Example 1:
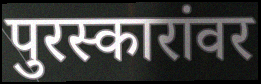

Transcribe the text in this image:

पुरस्कारांवर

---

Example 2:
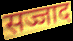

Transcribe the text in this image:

सज्जाद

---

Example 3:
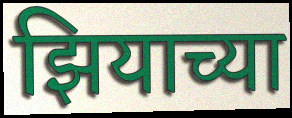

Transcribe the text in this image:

झियाच्या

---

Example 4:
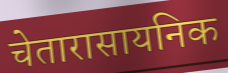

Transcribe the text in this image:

चेतारासायनिक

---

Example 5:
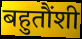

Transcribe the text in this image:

बहुतौंशी